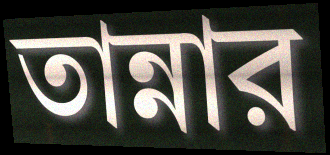
তান্নার